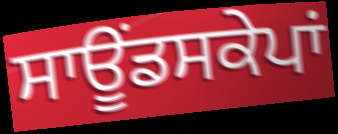
ਸਾਊਂਡਸਕੇਪਾਂ